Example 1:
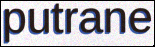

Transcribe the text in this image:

putrane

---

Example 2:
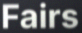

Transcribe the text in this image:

Fairs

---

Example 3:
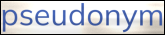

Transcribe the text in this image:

pseudonym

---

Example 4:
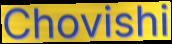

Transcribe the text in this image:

Chovishi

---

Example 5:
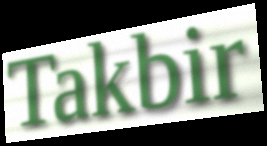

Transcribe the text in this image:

Takbir